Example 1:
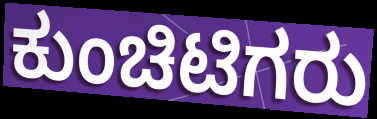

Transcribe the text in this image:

ಕುಂಚಿಟಿಗರು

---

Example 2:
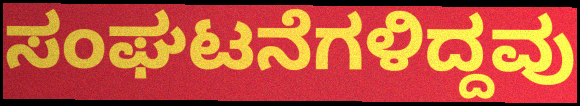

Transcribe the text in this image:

ಸಂಘಟನೆಗಳಿದ್ದವು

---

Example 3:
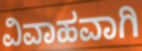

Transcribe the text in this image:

ವಿವಾಹವಾಗಿ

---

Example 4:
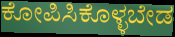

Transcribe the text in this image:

ಕೋಪಿಸಿಕೊಳ್ಳಬೇಡ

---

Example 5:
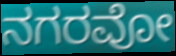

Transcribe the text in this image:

ನಗರವೋ